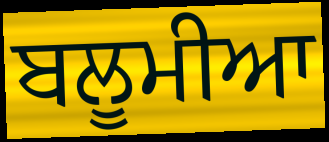
ਬਲੂਮੀਆ